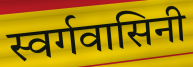
स्वर्गवासिनी